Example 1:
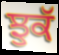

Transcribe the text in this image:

ਝੁਕੱ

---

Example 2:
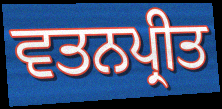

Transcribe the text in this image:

ਵਤਨਪ੍ਰੀਤ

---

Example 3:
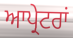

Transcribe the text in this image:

ਆਪ੍ਰੇਟਰਾਂ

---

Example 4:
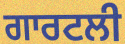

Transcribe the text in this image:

ਗਾਰਟਲੀ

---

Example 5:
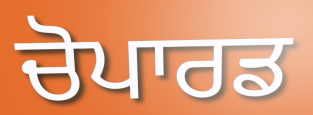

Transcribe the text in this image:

ਚੋਪਾਰਡ